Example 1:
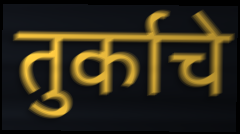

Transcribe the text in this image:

तुर्काचे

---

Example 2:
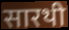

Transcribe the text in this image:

सारथी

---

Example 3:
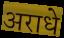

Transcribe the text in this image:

अराधे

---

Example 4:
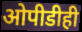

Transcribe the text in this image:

ओपीडीही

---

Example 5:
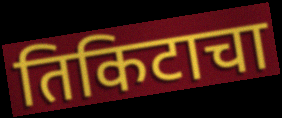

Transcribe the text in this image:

तिकिटाचा